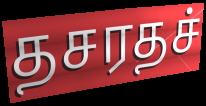
தசரதச்